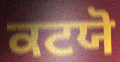
ਕਟਯੋ